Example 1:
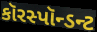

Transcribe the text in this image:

કૉરસ્પૉન્ડન્ટ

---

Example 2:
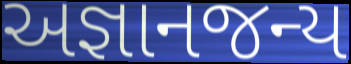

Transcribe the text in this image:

અજ્ઞાનજન્ય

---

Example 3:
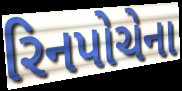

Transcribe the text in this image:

રિનપોચેના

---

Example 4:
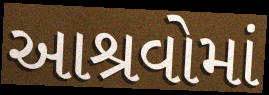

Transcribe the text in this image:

આશ્રવોમાં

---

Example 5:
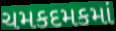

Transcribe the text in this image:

ચમકદમકમાં